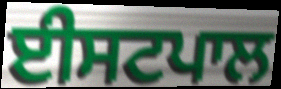
ਈਸਟਪਾਲ